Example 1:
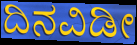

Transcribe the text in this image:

ದಿನವಿಡೀ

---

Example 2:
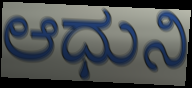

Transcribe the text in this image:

ಆಧುನಿ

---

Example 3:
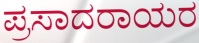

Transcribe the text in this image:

ಪ್ರಸಾದರಾಯರ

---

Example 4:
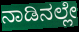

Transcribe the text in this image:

ನಾಡಿನಲ್ಲೇ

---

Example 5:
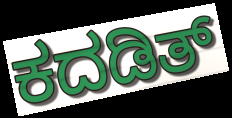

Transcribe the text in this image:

ಕದಡಿತ್